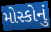
મોસ્કોનું